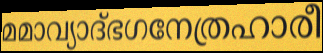
മമാവ്യാദ്ഭഗനേത്രഹാരീ